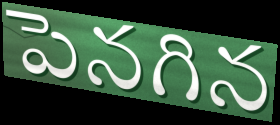
పెనగిన